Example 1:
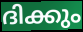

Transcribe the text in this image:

ദിക്കും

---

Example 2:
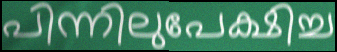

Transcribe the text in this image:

പിന്നിലുപേക്ഷിച്ച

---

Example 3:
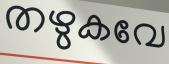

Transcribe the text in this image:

തഴുകവേ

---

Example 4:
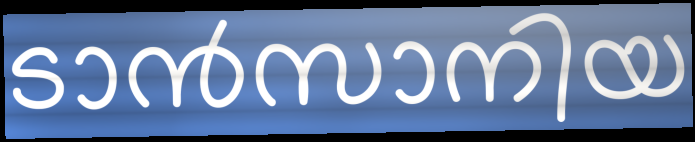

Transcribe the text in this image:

ടാൻസാനിയ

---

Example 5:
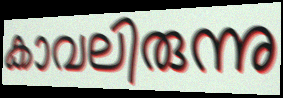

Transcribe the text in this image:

കാവലിരുന്നു